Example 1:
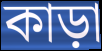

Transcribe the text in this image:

কাড়া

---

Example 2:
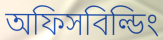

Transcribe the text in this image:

অফিসবিল্ডিং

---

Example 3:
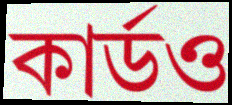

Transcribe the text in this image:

কার্ডও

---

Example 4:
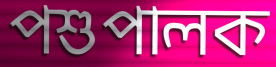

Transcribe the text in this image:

পশুপালক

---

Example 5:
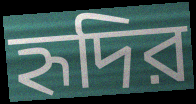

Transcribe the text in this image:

হৃদির